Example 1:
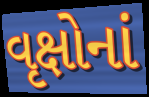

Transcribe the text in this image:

વૃક્ષોનાં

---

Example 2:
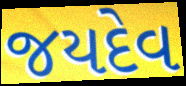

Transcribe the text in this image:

જયદેવ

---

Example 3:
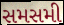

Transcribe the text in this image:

સમસમી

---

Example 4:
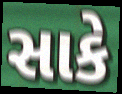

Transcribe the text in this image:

સાકે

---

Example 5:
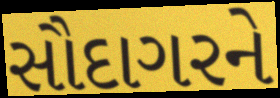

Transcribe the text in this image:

સૌદાગરને